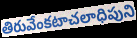
తిరువేంకటాచలాధిపుని